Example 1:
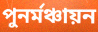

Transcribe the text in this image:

পুনর্মঞ্চায়ন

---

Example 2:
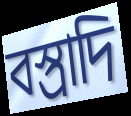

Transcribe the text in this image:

বস্ত্রাদি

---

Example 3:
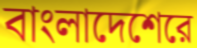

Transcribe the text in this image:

বাংলাদেশেরে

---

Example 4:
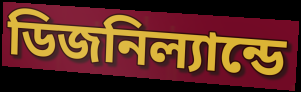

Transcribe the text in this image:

ডিজনিল্যান্ডে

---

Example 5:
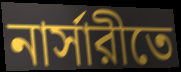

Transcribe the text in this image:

নার্সারীতে